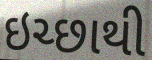
ઇચ્છાથી